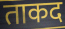
ताकद